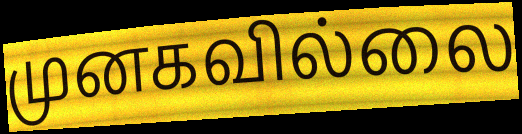
முனகவில்லை